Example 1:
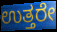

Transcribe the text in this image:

ಉತ್ತರೇ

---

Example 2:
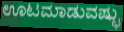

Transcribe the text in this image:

ಊಟಮಾಡುವಷ್ಟು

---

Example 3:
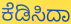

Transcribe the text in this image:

ಕೆಡಿಸಿದಾ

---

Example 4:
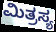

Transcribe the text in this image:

ಮಿತ್ರಸ್ಯ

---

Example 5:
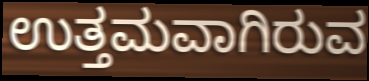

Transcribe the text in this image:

ಉತ್ತಮವಾಗಿರುವ